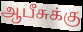
ஆபீசுக்கு